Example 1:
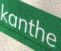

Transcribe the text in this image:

kanthe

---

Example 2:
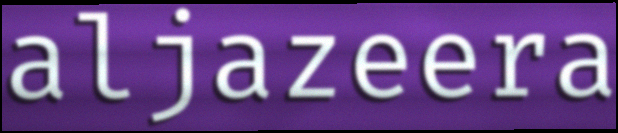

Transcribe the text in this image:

aljazeera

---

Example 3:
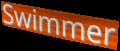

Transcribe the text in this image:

Swimmer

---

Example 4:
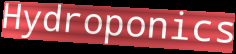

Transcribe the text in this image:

Hydroponics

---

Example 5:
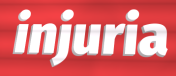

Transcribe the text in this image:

injuria